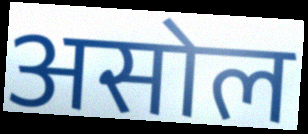
असोल